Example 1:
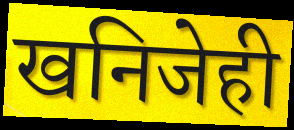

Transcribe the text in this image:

खनिजेही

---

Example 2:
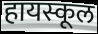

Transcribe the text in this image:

हायस्‍कूल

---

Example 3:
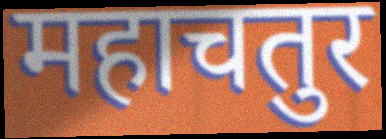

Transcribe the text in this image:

महाचतुर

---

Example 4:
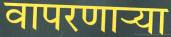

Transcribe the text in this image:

वापरणाऱ्या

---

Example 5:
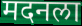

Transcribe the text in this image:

मदनला